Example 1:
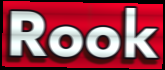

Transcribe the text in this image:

Rook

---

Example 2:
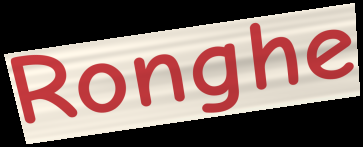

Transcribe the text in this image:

Ronghe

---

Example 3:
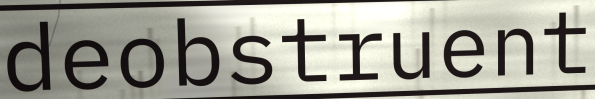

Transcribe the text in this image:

deobstruent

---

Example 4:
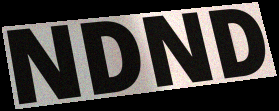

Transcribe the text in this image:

NDND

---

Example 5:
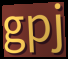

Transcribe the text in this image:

gpj